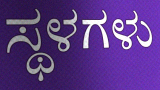
ಸ್ಥಳಗಳು